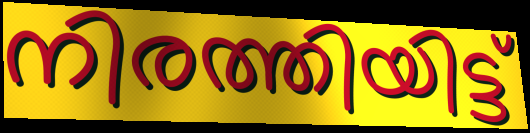
നിരത്തിയിട്ട്